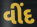
વીંદ